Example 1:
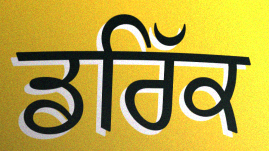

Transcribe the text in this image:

ਡਰਿੱਕ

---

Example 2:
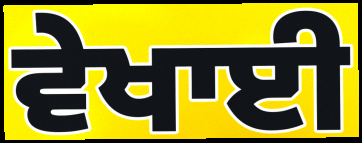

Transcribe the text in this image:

ਵੇਖਾਈ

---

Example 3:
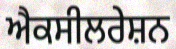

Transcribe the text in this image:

ਐਕਸੀਲਰੇਸ਼ਨ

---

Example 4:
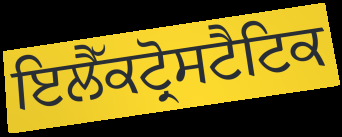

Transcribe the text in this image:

ਇਲੈੱਕਟ੍ਰੋਸਟੈਟਿਕ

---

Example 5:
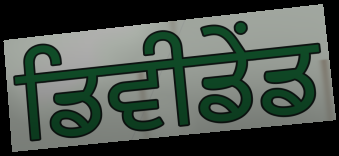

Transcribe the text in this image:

ਡਿਵੀਡੇਂਡ